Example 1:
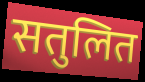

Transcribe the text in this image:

सतुलित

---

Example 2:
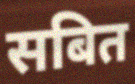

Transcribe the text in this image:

सबित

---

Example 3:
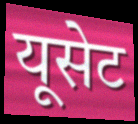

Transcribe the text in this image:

यूसेट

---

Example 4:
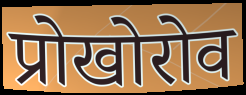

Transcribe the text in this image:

प्रोखोरोव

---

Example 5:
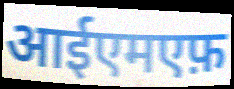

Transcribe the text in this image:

आईएमएफ़